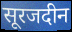
सूरजदीन